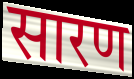
सारण